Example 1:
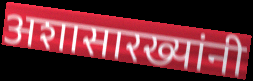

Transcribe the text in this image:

अशासारख्यांनी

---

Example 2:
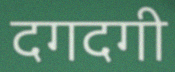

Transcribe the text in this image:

दगदगी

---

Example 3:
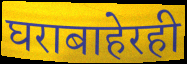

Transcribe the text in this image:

घराबाहेरही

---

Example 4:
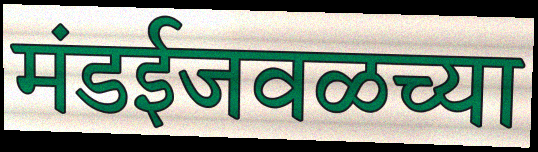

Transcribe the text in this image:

मंडईजवळच्या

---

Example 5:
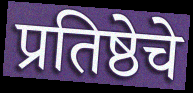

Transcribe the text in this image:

प्रतिष्ठेचे